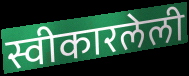
स्वीकारलेली